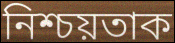
নিশ্চয়তাক